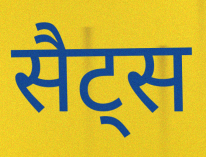
सैट्स